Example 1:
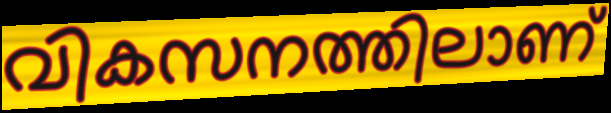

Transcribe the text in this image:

വികസനത്തിലാണ്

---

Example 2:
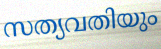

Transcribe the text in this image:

സത്യവതിയും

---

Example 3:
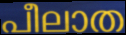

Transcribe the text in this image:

പീലാത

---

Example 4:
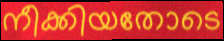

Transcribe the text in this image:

നീക്കിയതോടെ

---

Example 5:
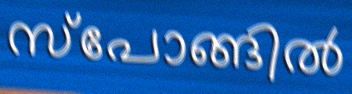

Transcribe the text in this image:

സ്പോങ്ങിൽ